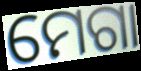
ମେଗା